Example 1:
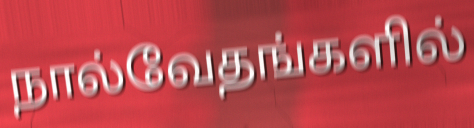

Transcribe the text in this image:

நால்வேதங்களில்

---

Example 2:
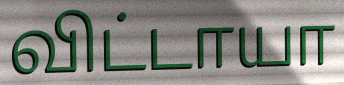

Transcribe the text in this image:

விட்டாயா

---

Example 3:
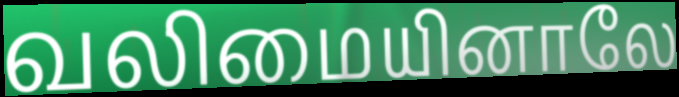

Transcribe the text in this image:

வலிமையினாலே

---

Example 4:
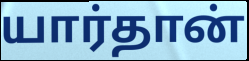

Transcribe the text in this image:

யார்தான்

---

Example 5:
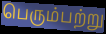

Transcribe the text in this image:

பெரும்பற்று